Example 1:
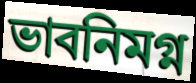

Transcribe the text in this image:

ভাবনিমগ্ন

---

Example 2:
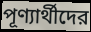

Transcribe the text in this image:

পূণ্যার্থীদের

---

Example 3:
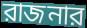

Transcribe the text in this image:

রাজনার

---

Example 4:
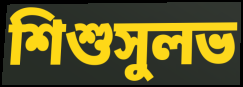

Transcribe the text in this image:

শিশুসুলভ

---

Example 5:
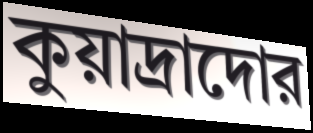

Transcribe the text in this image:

কুয়াদ্রাদোর